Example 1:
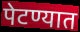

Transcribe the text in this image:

पेटण्यात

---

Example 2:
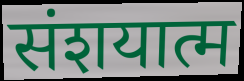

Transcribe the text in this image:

संशयात्म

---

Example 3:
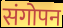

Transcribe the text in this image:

संगोपन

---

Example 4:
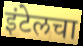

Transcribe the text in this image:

इंटेलचा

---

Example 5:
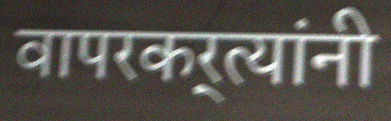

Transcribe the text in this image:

वापरकर्त्यांनी